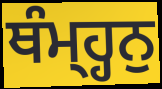
ਥੰਮ੍ਹ੍ਹਨੁ